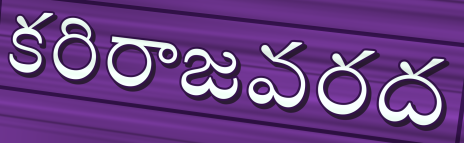
కరిరాజవరద